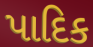
પાદિક